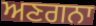
ਅਣਗਨਾ